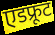
एडफ्रूट